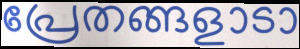
പ്രേതങ്ങളാടാ